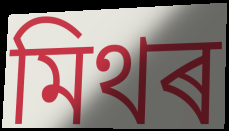
মিথৰ